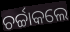
ଚର୍ଚ୍ଚାକଲେ